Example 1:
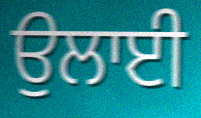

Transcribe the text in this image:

ਉਲਾਈ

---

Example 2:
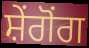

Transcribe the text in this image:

ਸ਼ੇਂਗੋਂਗ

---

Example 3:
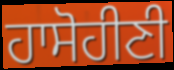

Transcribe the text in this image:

ਹਾਸੋਹੀਣੀ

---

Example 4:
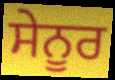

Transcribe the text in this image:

ਸੇਨੂਰ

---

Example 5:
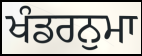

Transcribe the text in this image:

ਖੰਡਰਨੁਮਾ